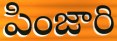
పింజారి